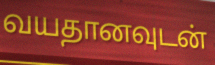
வயதானவுடன்